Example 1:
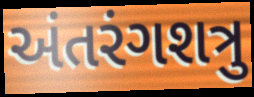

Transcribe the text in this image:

અંતરંગશત્રુ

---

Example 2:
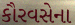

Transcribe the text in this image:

કૌરવસેના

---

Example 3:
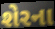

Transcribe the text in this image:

શેરના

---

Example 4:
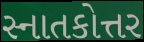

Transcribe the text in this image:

સ્નાતકોત્તર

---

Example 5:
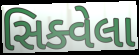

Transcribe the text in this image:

સિક્વેલા